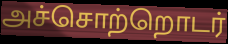
அச்சொற்றொடர்